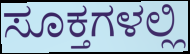
ಸೂಕ್ತಗಳಲ್ಲಿ